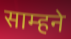
साम्हने